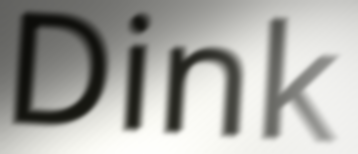
Dink